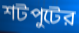
শটপুটের